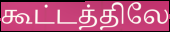
கூட்டத்திலே